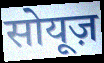
सोयूज़